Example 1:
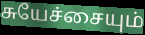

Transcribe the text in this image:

சுயேச்சையும்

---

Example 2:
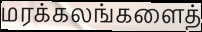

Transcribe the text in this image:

மரக்கலங்களைத்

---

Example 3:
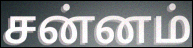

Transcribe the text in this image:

சன்னம்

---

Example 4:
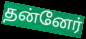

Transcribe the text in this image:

தன்னேர்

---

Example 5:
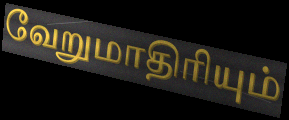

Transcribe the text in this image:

வேறுமாதிரியும்